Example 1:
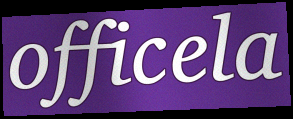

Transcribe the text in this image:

officela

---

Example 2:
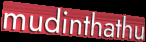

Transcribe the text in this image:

mudinthathu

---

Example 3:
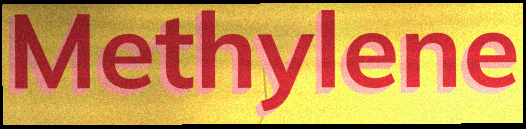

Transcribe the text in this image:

Methylene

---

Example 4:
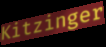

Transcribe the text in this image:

Kitzinger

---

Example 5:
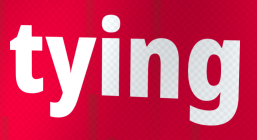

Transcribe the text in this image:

tying